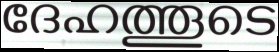
ദേഹത്തൂടെ